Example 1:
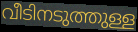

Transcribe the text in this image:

വീടിനടുത്തുള്ള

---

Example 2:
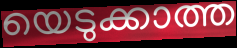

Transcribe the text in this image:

യെടുക്കാത്ത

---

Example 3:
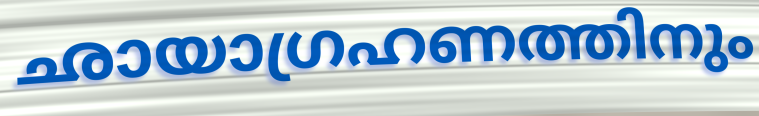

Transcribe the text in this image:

ഛായാഗ്രഹണത്തിനും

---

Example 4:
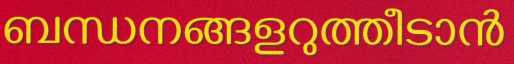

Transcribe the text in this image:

ബന്ധനങ്ങളറുത്തീടാൻ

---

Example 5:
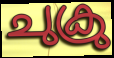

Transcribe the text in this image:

ചുക്രു